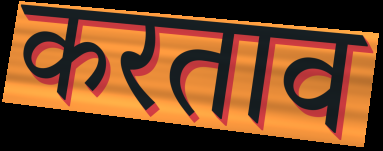
करताव